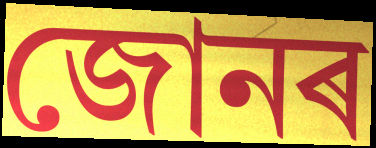
জোনৰ